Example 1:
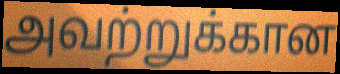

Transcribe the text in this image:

அவற்றுக்கான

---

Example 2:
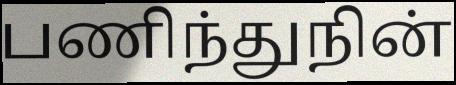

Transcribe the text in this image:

பணிந்துநின்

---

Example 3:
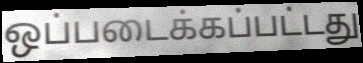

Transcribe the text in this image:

ஒப்படைக்கப்பட்டது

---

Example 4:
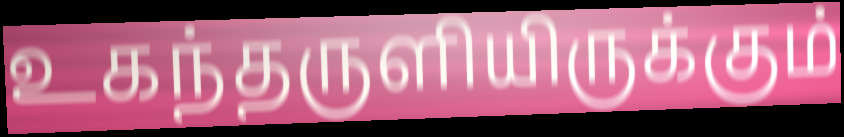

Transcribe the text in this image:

உகந்தருளியிருக்கும்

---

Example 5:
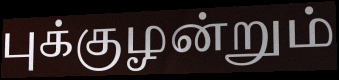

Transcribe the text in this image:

புக்குழன்றும்